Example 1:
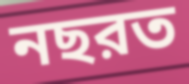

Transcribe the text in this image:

নছরত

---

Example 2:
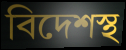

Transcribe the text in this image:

বিদেশস্থ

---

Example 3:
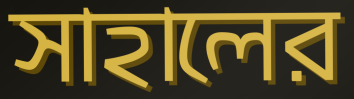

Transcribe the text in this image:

সাহালের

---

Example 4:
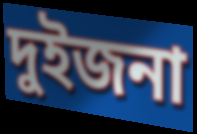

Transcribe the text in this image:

দুইজনা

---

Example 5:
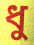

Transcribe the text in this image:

ধু